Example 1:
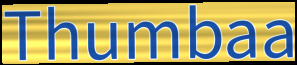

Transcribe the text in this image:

Thumbaa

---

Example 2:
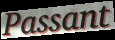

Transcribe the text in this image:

Passant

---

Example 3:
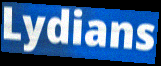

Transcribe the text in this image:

Lydians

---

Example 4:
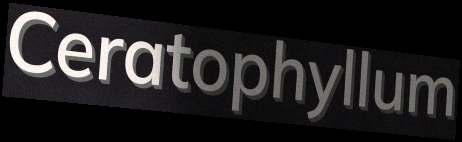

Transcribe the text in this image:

Ceratophyllum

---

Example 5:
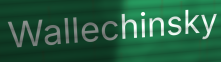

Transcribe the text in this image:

Wallechinsky